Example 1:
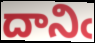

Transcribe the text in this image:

దానిఁ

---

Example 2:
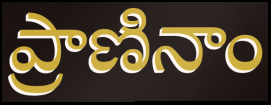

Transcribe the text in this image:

ప్రాణినాం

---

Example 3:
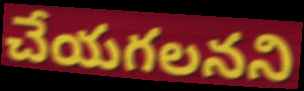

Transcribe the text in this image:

చేయగలనని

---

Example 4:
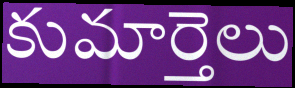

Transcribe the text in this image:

కుమార్తెలు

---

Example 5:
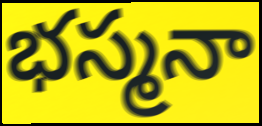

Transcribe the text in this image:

భస్మనా